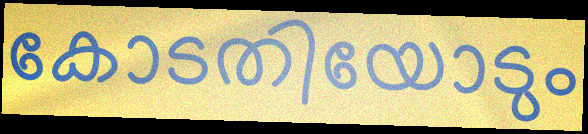
കോടതിയോടും